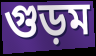
গুড়ম